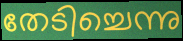
തേടിച്ചെന്നു